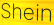
Shein